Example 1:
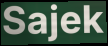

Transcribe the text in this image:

Sajek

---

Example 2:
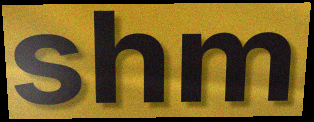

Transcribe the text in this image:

shm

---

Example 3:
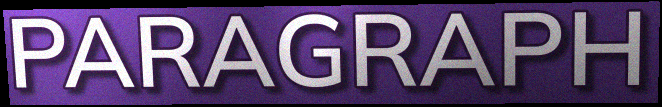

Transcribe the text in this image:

PARAGRAPH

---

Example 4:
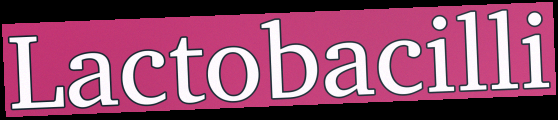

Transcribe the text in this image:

Lactobacilli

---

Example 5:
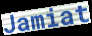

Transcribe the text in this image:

Jamiat